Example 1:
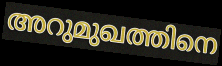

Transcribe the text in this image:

അറുമുഖത്തിനെ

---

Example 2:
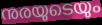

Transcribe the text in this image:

നുരയുടെയും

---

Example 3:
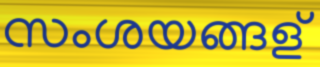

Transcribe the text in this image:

സംശയങ്ങള്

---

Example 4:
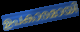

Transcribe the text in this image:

ഉപകാരമായി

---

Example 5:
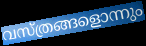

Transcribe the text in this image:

വസ്ത്രങ്ങളൊന്നും